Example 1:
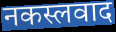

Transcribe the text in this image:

नकस्लवाद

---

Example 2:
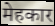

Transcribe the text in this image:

मेहकार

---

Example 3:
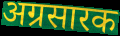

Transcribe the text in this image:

अग्रसारक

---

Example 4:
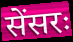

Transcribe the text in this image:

सेंसरः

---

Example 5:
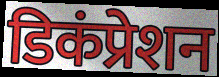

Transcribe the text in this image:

डिकंप्रेशन